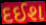
દઈશ